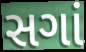
સગાં